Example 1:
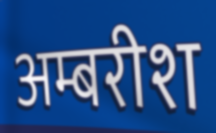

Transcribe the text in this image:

अम्बरीश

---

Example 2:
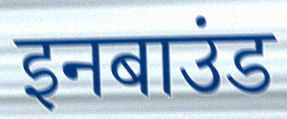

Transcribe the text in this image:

इनबाउंड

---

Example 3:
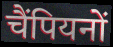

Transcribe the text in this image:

चैंपियनों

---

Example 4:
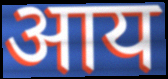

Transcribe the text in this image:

आय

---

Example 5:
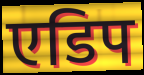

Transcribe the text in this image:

एडिप